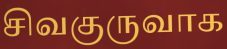
சிவகுருவாக